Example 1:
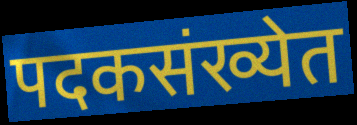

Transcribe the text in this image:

पदकसंख्येत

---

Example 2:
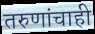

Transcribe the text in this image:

तरुणांचाही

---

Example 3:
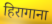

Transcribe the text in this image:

हिरागाना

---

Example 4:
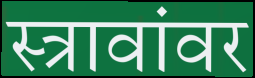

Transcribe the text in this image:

स्त्रावांवर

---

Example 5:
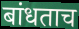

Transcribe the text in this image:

बांधताच